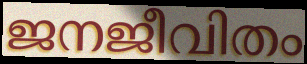
ജനജീവിതം